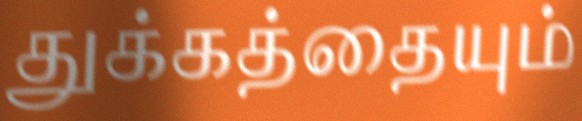
துக்கத்தையும்